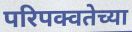
परिपक्वतेच्या